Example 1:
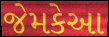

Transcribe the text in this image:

જેમકેઆ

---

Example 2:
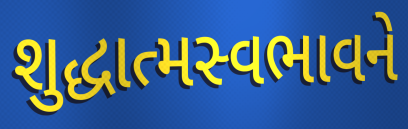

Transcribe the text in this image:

શુદ્ધાત્મસ્વભાવને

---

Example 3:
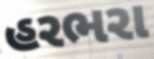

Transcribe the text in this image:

હરભરા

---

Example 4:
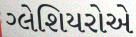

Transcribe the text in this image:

ગ્લેશિયરોએ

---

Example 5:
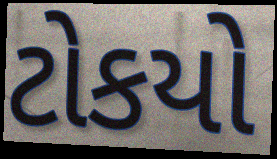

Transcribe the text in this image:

ટોકયો